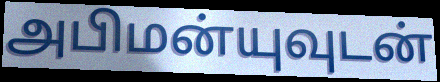
அபிமன்யுவுடன்